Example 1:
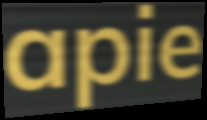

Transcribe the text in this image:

apie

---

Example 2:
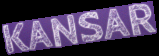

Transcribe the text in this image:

KANSAR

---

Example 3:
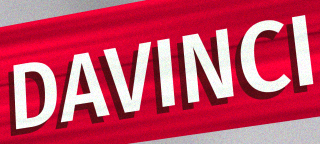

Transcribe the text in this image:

DAVINCI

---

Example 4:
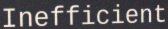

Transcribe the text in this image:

Inefficient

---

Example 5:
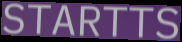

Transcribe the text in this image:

STARTTS